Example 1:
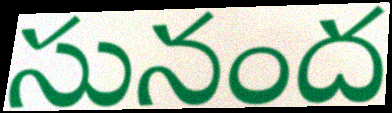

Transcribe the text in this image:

సునంద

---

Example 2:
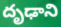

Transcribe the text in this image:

దృఢాని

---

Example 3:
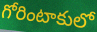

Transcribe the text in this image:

గోరింటాకులో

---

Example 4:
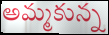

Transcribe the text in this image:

అమ్మకున్న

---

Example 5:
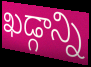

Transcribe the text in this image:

ఖడ్గాన్ని